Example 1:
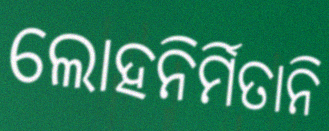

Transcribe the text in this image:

ଲୋହନିର୍ମିତାନି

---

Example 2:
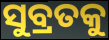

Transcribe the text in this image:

ସୁବ୍ରତକୁ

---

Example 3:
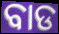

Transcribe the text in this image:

ବାଡ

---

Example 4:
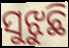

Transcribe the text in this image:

ସୁଝୁଛି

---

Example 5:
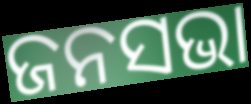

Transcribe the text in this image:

ଜନସଭା